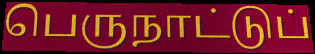
பெருநாட்டுப்